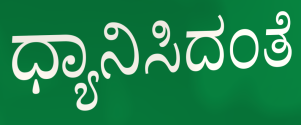
ಧ್ಯಾನಿಸಿದಂತೆ